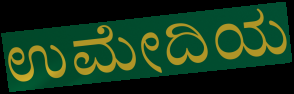
ಉಮೇದಿಯ